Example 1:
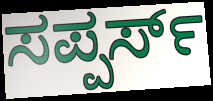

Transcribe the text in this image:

ಸಪ್ಪರ್ಸ್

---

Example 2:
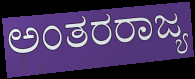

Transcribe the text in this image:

ಅಂತರರಾಜ್ಯ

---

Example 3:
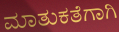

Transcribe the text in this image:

ಮಾತುಕತೆಗಾಗಿ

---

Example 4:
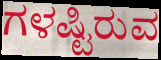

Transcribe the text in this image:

ಗಳಷ್ಟಿರುವ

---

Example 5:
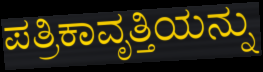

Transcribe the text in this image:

ಪತ್ರಿಕಾವೃತ್ತಿಯನ್ನು